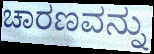
ಚಾರಣವನ್ನು